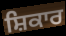
ਸ਼ਿਕਾਰ